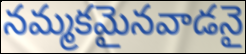
నమ్మకమైనవాడనై